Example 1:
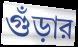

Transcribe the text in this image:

গুঁড়ার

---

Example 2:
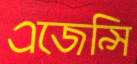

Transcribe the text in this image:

এজেন্সি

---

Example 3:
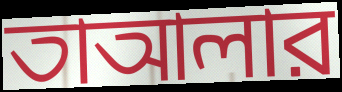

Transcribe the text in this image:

তাআলার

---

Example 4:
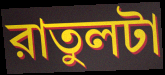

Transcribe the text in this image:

রাতুলটা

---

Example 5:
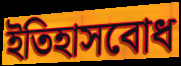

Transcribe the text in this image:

ইতিহাসবোধ